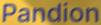
Pandion